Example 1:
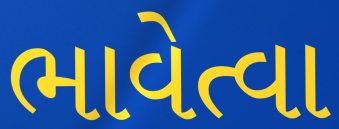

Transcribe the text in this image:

ભાવેત્વા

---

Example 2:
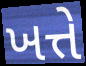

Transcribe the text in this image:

ખત્તે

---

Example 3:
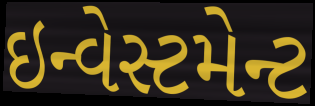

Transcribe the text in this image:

ઇન્વેસ્ટમેન્ટ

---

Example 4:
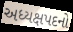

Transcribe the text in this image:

અધ્યક્ષપદનો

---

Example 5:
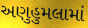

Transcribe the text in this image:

અણુહુમલામાં